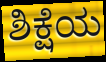
ಶಿಕ್ಷೆಯ